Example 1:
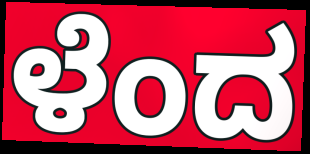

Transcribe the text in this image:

ಳೆಂದ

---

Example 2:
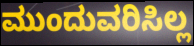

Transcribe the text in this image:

ಮುಂದುವರಿಸಿಲ್ಲ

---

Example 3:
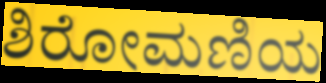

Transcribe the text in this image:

ಶಿರೋಮಣಿಯ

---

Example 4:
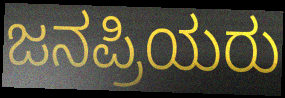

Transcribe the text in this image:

ಜನಪ್ರಿಯರು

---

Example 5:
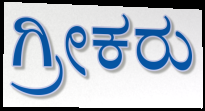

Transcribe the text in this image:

ಗ್ರೀಕರು